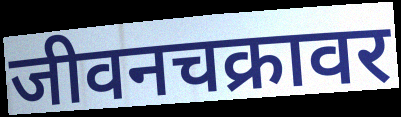
जीवनचक्रावर